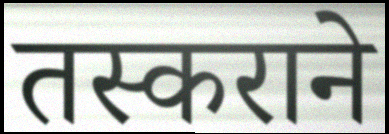
तस्कराने